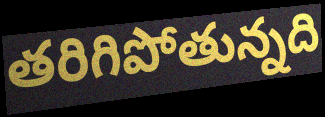
తరిగిపోతున్నది